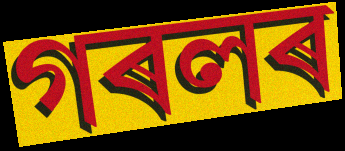
গৰলৰ